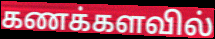
கணக்களவில்